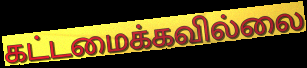
கட்டமைக்கவில்லை